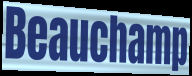
Beauchamp